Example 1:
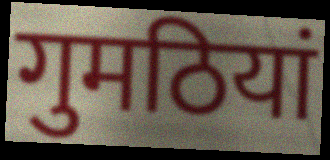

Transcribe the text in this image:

गुमठियां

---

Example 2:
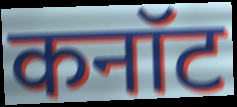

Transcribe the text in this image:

कनॉट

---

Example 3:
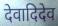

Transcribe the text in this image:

देवादिदेव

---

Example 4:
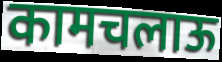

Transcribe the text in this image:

कामचलाऊ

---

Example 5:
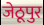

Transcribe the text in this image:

जेठूपुर